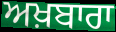
ਅਖ਼ਬਾਰਾ